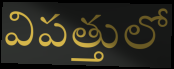
విపత్తులో